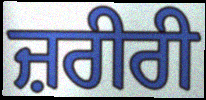
ਜ਼ਰੀਰੀ